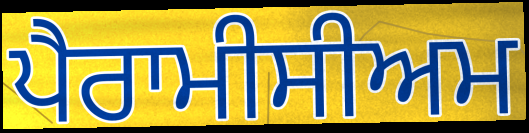
ਪੈਰਾਮੀਸੀਅਮ